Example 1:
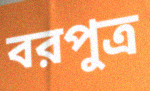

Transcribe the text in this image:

বরপুত্র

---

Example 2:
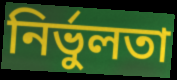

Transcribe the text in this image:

নির্ভুলতা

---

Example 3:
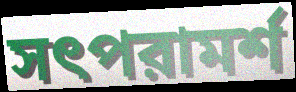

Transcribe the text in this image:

সৎপরামর্শ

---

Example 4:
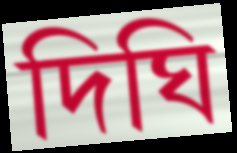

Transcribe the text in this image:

দিঘি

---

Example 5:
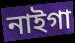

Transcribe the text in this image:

নাইগা